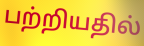
பற்றியதில்